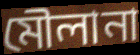
মৌলানা